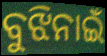
ବୁଝିନାଇଁ